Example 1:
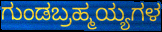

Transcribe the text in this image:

ಗುಂಡಬ್ರಹ್ಮಯ್ಯಗಳ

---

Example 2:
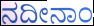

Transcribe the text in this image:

ನದೀನಾಂ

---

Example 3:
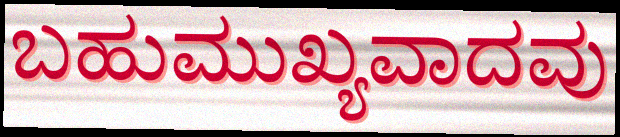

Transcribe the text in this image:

ಬಹುಮುಖ್ಯವಾದವು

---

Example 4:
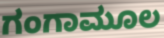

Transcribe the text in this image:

ಗಂಗಾಮೂಲ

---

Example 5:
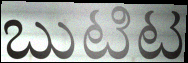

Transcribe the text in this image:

ಬುಟಿಟ